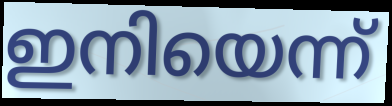
ഇനിയെന്ന്